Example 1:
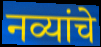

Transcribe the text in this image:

नव्यांचे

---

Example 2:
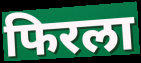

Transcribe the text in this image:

फिरला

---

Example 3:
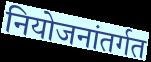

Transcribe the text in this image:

नियोजनांतर्गत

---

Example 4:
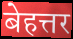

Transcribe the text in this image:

बेहत्तर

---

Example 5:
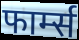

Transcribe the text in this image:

फार्म्स